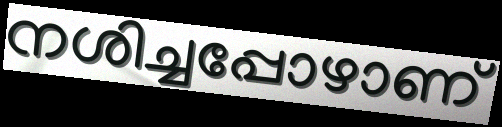
നശിച്ചപ്പോഴാണ്